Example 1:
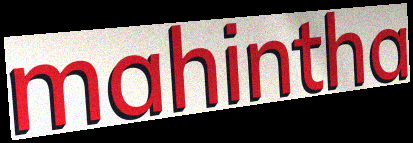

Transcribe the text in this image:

mahintha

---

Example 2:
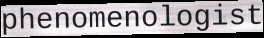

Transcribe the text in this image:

phenomenologist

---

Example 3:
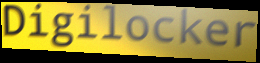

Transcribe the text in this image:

Digilocker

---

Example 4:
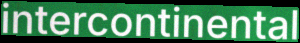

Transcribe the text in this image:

intercontinental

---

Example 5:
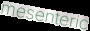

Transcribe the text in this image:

mesenteric